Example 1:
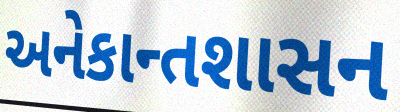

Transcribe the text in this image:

અનેકાન્તશાસન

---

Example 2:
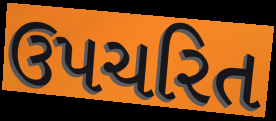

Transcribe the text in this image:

ઉપચરિત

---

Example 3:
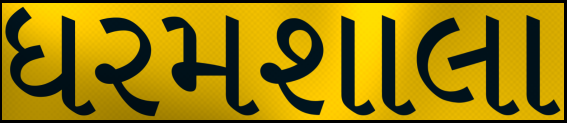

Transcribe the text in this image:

ધરમશાલા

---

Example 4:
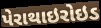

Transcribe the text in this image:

પેરાથાઇરોઇડ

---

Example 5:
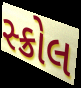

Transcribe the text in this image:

સ્ક્રોલ